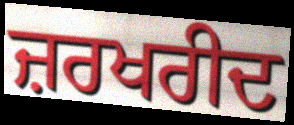
ਜ਼ਰਖਰੀਦ